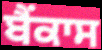
ਬੈਂਕਾਸ